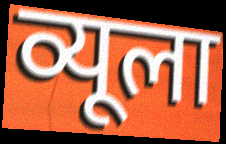
व्यूला